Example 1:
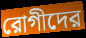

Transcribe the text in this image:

রোগীদের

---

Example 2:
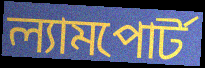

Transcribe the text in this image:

ল্যামপোর্ট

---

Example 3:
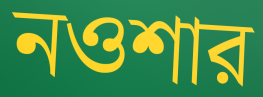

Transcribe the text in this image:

নওশার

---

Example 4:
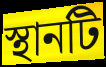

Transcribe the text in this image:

স্থানটি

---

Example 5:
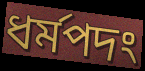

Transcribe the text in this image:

ধর্মপদং